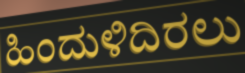
ಹಿಂದುಳಿದಿರಲು